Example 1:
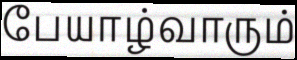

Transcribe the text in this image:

பேயாழ்வாரும்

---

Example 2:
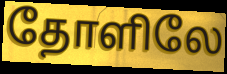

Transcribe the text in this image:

தோளிலே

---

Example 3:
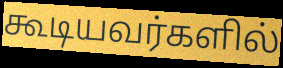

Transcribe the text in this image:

கூடியவர்களில்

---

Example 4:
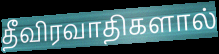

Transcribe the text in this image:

தீவிரவாதிகளால்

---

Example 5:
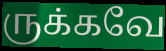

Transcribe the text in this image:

ருக்கவே